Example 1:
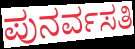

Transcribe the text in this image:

ಪುನರ್ವಸತಿ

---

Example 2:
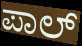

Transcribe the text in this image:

ಪಾಲ್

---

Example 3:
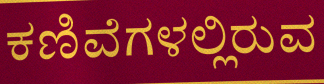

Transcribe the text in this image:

ಕಣಿವೆಗಳಲ್ಲಿರುವ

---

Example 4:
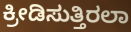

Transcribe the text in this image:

ಕ್ರೀಡಿಸುತ್ತಿರಲಾ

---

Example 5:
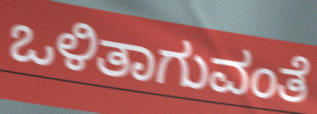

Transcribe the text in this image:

ಒಳಿತಾಗುವಂತೆ